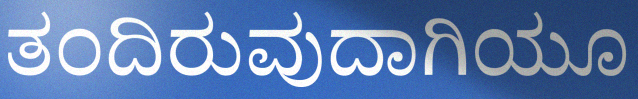
ತಂದಿರುವುದಾಗಿಯೂ